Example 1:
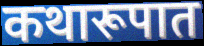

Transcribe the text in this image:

कथारूपात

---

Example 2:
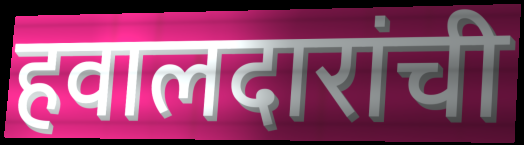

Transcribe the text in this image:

हवालदारांची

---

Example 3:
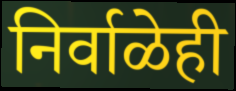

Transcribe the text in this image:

निर्वाळेही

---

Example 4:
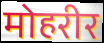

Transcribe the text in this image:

मोहरीर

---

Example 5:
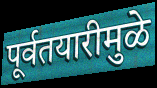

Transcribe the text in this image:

पूर्वतयारीमुळे